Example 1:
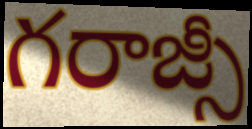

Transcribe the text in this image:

గరాజ్సీ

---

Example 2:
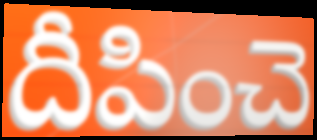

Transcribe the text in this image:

దీపించె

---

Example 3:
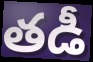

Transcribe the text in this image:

తడీ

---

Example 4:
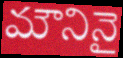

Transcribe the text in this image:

మౌనినై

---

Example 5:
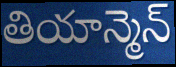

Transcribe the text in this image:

తియాన్మెన్